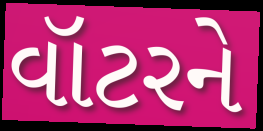
વૉટરને